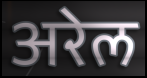
अरेल